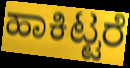
ಹಾಕಿಟ್ಟರೆ